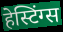
हेस्टिंग्स